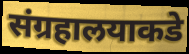
संग्रहालयाकडे